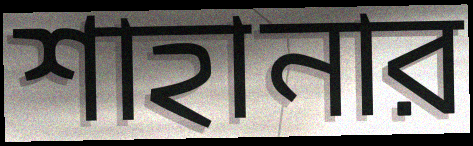
শাহানার